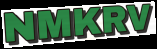
NMKRV